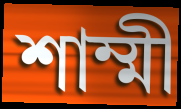
শাম্মী